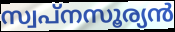
സ്വപ്നസൂര്യൻ